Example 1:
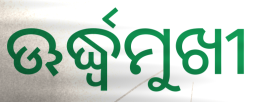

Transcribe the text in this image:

ଊର୍ଦ୍ଧ୍ବମୁଖୀ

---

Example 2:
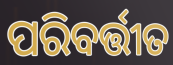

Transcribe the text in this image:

ପରିବର୍ତ୍ତୀତ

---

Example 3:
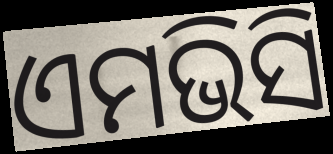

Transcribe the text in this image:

ଏମଭିସି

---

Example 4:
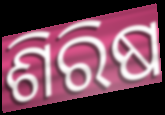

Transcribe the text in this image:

ଶିରିଷ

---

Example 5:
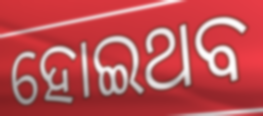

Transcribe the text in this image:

ହୋଇଥବ